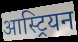
आस्ट्रियन